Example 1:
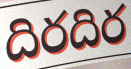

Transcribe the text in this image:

దిరదిర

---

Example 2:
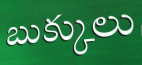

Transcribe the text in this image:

బుక్కులు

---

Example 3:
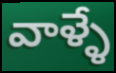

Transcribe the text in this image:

వాళ్ళే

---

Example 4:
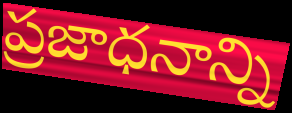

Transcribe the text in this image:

ప్రజాధనాన్ని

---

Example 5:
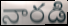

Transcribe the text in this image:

నారడి